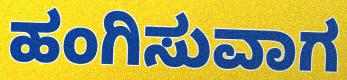
ಹಂಗಿಸುವಾಗ